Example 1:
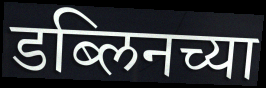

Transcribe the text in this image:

डब्लिनच्या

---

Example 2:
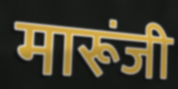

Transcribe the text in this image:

मारूंजी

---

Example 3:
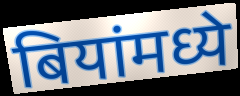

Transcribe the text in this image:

बियांमध्ये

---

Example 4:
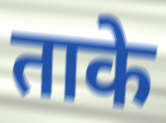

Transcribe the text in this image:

ताके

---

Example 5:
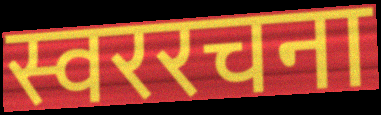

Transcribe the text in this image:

स्वररचना